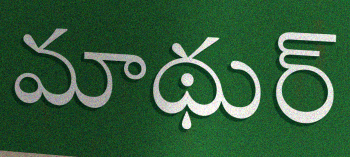
మాథుర్